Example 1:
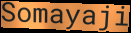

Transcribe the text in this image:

Somayaji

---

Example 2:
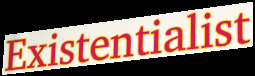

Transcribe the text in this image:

Existentialist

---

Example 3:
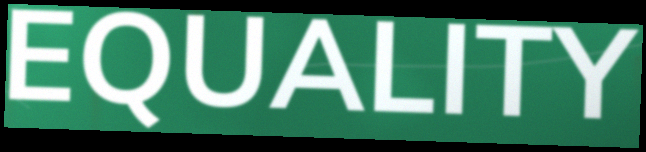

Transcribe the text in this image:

EQUALITY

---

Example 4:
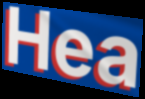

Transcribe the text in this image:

Hea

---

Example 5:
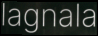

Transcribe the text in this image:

lagnala